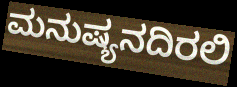
ಮನುಷ್ಯನದಿರಲಿ